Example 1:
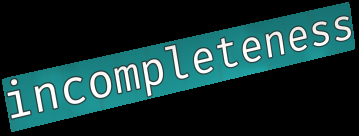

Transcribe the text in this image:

incompleteness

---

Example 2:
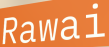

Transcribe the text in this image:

Rawai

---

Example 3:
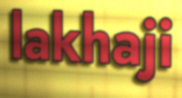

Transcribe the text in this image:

lakhaji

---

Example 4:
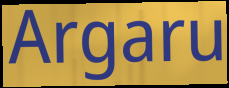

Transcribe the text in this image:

Argaru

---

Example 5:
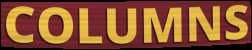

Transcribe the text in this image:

COLUMNS